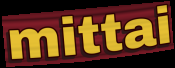
mittai